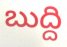
బుద్ది